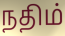
நதிம்